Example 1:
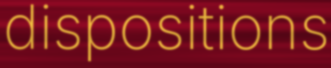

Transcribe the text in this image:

dispositions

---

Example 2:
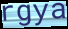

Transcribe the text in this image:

rgya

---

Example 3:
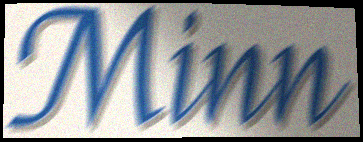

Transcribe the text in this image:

Minn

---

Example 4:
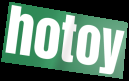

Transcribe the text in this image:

hotoy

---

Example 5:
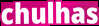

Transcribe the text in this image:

chulhas